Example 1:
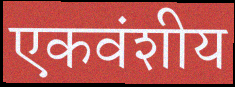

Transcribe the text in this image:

एकवंशीय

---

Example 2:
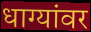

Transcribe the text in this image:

धाग्यांवर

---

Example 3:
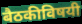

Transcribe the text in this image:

बैठकीविषयी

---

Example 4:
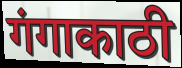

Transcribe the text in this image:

गंगाकाठी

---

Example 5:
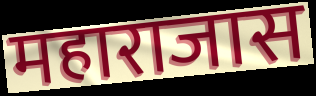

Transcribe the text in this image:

महाराजास